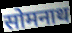
सोमनाथ